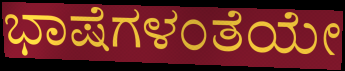
ಭಾಷೆಗಳಂತೆಯೇ